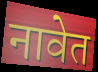
नावेत